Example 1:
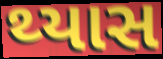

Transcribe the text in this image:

થ્યાસ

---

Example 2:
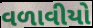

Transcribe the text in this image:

વળાવીયો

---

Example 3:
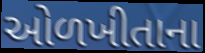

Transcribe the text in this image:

ઓળખીતાના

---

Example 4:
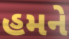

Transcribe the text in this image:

હમને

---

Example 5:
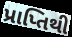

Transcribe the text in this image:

પ્રાપ્તિથી